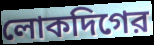
লোকদিগের